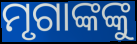
ମୃଗାଙ୍କଙ୍କୁ